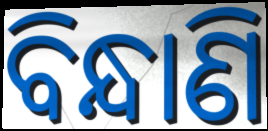
ବିନ୍ଧାଣି